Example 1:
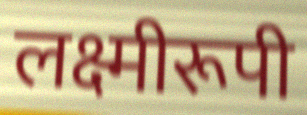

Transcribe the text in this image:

लक्ष्मीरूपी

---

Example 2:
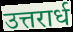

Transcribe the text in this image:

उत्तरार्ध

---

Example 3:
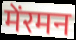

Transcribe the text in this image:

मेंरमन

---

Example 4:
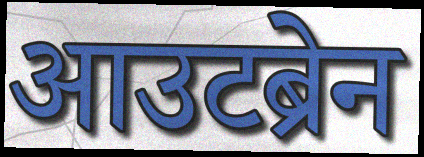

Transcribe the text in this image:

आउटब्रेन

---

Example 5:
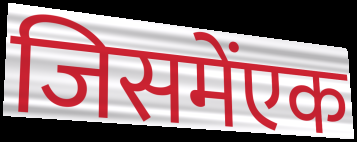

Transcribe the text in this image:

जिसमेंएक